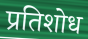
प्रतिशोध